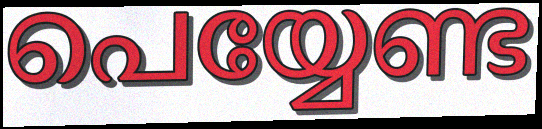
പെയ്യേണ്ട